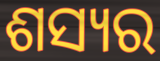
ଶସ୍ଯର